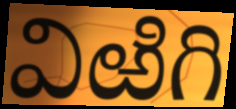
విఱిగి